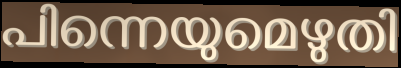
പിന്നെയുമെഴുതി